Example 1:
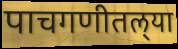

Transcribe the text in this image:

पाचगणीतल्या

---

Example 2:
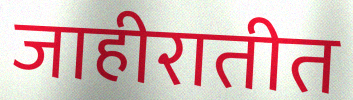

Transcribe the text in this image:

जाहीरातीत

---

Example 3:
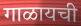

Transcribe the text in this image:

गाळायची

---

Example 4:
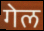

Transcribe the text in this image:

गेल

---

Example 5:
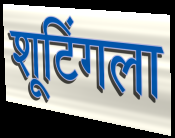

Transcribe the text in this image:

शूटिंगला